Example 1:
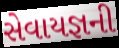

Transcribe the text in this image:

સેવાયજ્ઞની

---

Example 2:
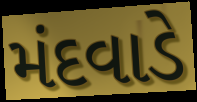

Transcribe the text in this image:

મંદવાડે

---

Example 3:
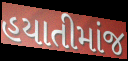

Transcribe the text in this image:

હયાતીમાંજ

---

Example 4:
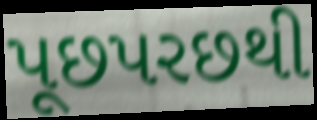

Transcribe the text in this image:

પૂછપરછથી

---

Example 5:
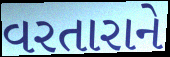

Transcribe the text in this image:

વરતારાને